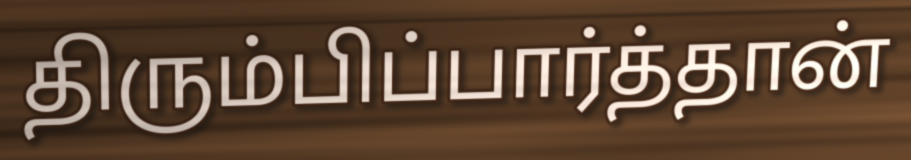
திரும்பிப்பார்த்தான்